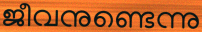
ജീവനുണ്ടെന്നു